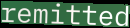
remitted